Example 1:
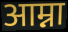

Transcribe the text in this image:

आम्ना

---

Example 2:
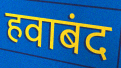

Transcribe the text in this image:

हवाबंद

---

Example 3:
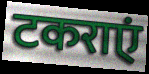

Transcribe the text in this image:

टकराएं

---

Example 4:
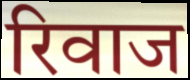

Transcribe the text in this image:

रिवाज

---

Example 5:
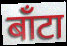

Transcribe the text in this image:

बाँटा